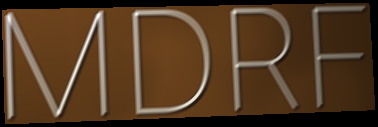
MDRF